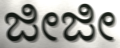
ಜೀಜೀ